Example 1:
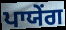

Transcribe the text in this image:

ਪਾਯੇਂਗ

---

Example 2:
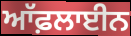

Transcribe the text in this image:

ਆੱਫ਼ਲਾਈਨ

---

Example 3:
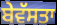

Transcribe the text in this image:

ਬੇਵੱਸਤਾ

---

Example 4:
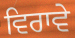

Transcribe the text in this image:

ਵਿਰਾਵੇ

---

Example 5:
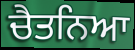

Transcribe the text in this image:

ਚੈਤਨਿਆ